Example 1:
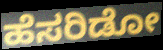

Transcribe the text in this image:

ಹೆಸರಿಡೋ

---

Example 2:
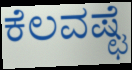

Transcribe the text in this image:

ಕೆಲವಷ್ಟೆ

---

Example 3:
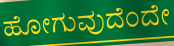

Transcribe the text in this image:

ಹೋಗುವುದೆಂದೇ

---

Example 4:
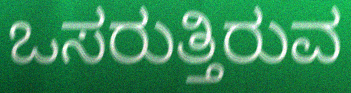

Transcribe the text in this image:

ಒಸರುತ್ತಿರುವ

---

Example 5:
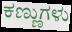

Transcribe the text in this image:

ಕಣ್ಣುಗಳು